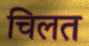
चिलत